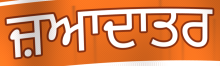
ਜ਼ਆਦਾਤਰ